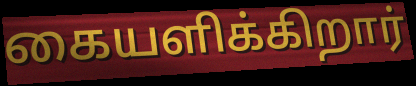
கையளிக்கிறார்